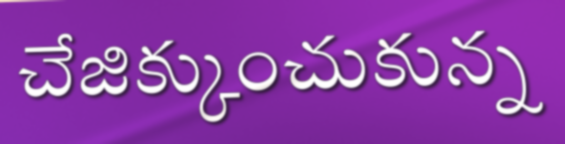
చేజిక్కుంచుకున్న